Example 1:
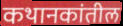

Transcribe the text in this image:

कथानकांतील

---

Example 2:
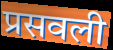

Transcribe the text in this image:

प्रसवली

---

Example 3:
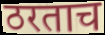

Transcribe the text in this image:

ठरताच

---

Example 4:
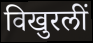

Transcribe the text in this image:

विखुरलीं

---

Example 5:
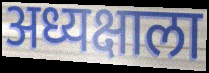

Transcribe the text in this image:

अध्यक्षाला